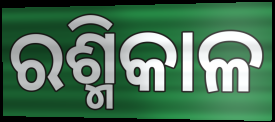
ରଶ୍ମିକାଳ